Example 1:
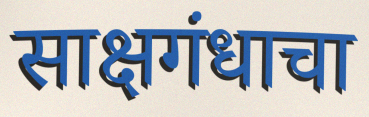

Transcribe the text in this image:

साक्षगंधाचा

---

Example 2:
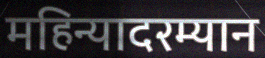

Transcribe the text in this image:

महिन्यादरम्यान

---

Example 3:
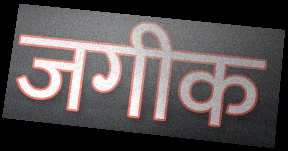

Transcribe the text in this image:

जगीक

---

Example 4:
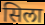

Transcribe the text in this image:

सिला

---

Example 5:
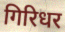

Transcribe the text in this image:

गिरिधर